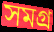
সমগ্ৰ